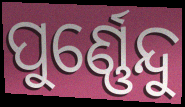
ପୁର୍ଣ୍ଣେନ୍ଦୁ